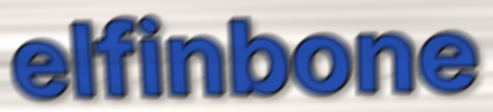
elfinbone